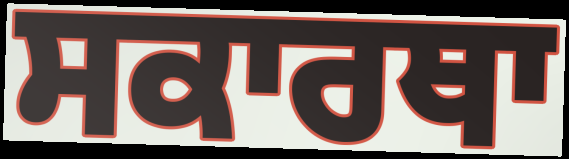
ਸਕਾਰਥਾ